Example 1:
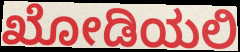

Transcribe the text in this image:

ಖೋಡಿಯಲಿ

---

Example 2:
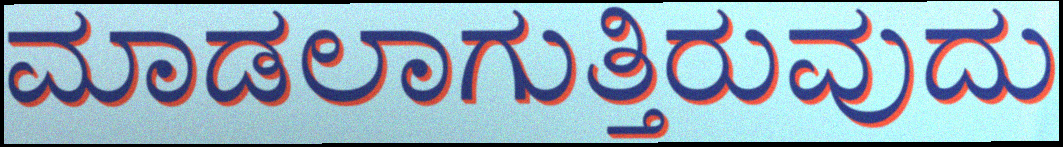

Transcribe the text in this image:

ಮಾಡಲಾಗುತ್ತಿರುವುದು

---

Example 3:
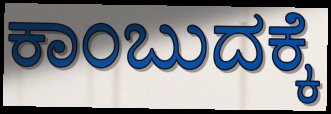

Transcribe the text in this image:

ಕಾಂಬುದಕ್ಕೆ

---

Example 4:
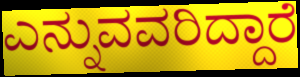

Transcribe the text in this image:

ಎನ್ನುವವರಿದ್ದಾರೆ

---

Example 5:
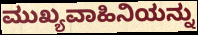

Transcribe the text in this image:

ಮುಖ್ಯವಾಹಿನಿಯನ್ನು